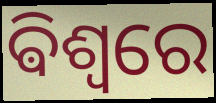
ଵିଶ୍ଵରେ